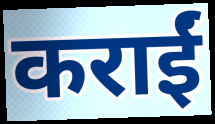
कराईं